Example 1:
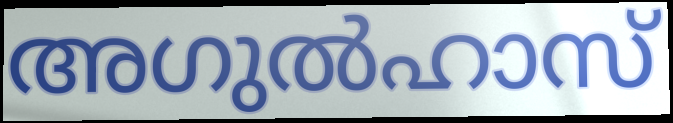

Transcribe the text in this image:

അഗുൽഹാസ്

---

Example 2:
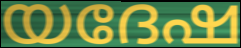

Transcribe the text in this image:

യദേഷ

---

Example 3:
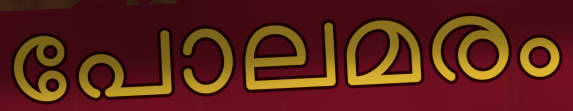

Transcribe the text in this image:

പോലമരം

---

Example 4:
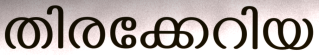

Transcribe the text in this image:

തിരക്കേറിയ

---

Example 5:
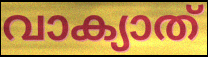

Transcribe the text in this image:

വാക്യാത്